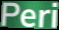
Peri